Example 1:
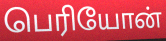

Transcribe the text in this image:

பெரியோன்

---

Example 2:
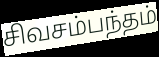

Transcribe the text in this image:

சிவசம்பந்தம்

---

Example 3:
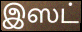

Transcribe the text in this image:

இஸட்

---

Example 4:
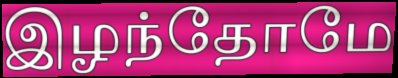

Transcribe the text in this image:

இழந்தோமே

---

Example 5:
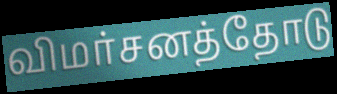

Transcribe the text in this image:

விமர்சனத்தோடு